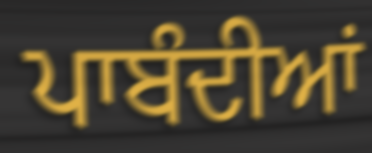
ਪਾਬੰਦੀਆਂ